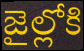
జైల్లోకి